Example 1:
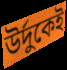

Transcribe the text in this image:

উর্দুকেই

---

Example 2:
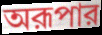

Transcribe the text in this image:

অরূপার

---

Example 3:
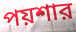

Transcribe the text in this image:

পয়শার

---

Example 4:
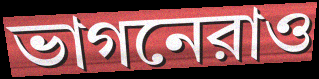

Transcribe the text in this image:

ভাগনেরাও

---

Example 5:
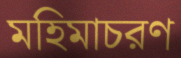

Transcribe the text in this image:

মহিমাচরণ